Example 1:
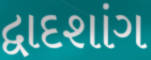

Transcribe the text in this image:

દ્વાદશાંગ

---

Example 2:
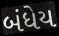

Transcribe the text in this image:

બંધેય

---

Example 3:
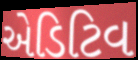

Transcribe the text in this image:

એડિટિવ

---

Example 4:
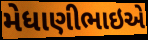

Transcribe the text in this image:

મેધાણીભાઇએ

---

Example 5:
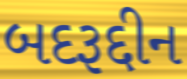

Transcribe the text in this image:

બદરૂદ્દીન